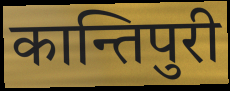
कान्तिपुरी